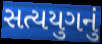
સત્યયુગનું